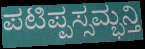
ಪಟಿಪ್ಪಸ್ಸಮ್ಭನ್ತಿ